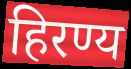
हिरण्य